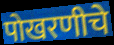
पोखरणीचे